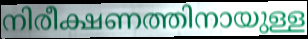
നിരീക്ഷണത്തിനായുള്ള